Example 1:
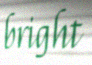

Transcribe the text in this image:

bright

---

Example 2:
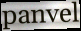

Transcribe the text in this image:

panvel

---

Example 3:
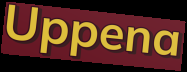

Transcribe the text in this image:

Uppena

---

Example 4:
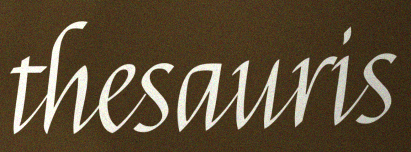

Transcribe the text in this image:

thesauris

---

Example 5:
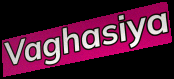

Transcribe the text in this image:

Vaghasiya